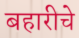
बहारीचे